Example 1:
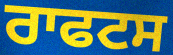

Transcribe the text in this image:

ਰਾਫਟਸ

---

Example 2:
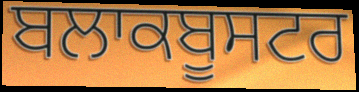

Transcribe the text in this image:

ਬਲਾਕਬੂਸਟਰ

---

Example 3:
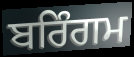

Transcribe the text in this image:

ਬਰਿੰਗਮ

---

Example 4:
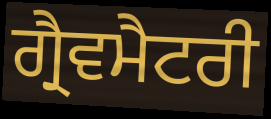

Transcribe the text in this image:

ਗ੍ਰੈਵਮੈਟਰੀ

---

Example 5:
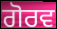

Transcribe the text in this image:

ਗੋਰਵ